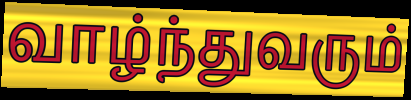
வாழ்ந்துவரும்